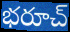
భరూచ్